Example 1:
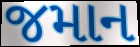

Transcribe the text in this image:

જમાન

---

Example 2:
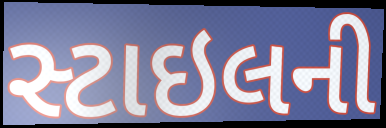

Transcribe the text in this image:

સ્ટાઇલની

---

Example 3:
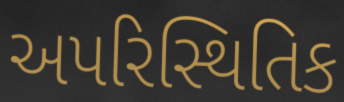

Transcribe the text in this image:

અપરિસ્થિતિક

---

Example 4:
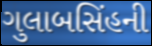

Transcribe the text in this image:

ગુલાબસિંહની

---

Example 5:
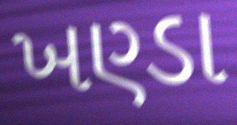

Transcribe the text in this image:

ખણ્ડા